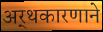
अर्थकारणाने